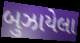
બુઝાયેલા